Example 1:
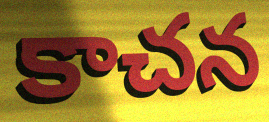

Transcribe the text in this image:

కాచన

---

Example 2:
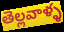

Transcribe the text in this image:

తెల్లవాళ్ళ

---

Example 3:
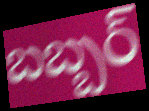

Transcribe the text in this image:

బబ్బర్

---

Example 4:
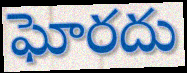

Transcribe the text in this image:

ఘోరదు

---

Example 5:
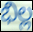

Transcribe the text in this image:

భిల్ల